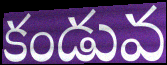
కండువ